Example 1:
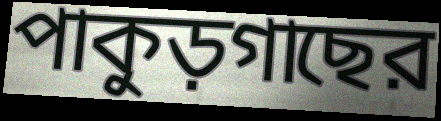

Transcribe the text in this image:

পাকুড়গাছের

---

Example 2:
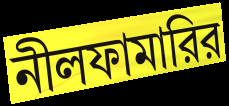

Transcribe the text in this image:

নীলফামারির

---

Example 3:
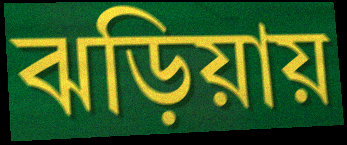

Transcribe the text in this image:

ঝড়িয়ায়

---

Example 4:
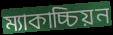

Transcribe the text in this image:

ম্যাকাচ্চিয়ন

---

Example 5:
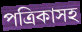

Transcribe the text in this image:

পত্রিকাসহ